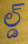
ల్డ్